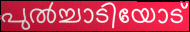
പുൽച്ചാടിയോട്